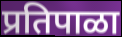
प्रतिपाळा